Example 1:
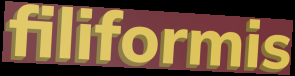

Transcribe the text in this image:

filiformis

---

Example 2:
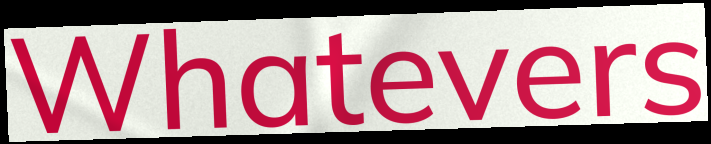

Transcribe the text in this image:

Whatevers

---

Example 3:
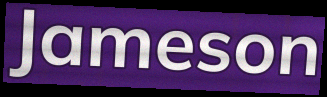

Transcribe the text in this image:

Jameson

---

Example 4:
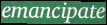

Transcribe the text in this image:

emancipate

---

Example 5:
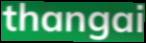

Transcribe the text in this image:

thangai